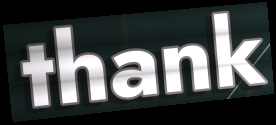
thank